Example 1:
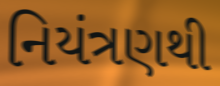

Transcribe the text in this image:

નિયંત્રણથી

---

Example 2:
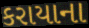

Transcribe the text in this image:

કરાયાના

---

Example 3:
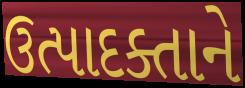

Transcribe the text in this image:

ઉત્પાદક્તાને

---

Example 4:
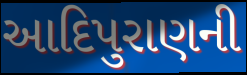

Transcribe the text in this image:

આદિપુરાણની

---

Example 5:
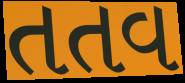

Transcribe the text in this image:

તતવ